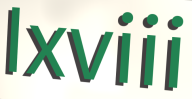
Ixviii